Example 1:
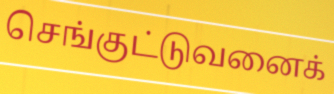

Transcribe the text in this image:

செங்குட்டுவனைக்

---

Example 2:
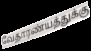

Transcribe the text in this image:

வேதாரண்யத்துக்கு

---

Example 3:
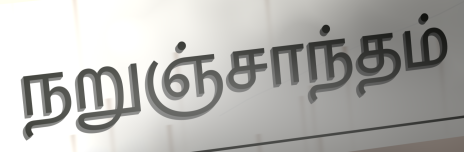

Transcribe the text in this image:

நறுஞ்சாந்தம்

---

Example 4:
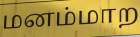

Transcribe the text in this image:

மனம்மாற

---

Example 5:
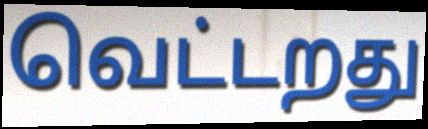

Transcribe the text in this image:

வெட்டறது